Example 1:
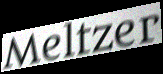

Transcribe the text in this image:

Meltzer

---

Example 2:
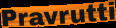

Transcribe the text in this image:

Pravrutti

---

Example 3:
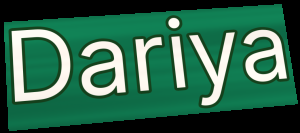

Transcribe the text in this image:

Dariya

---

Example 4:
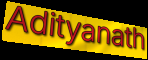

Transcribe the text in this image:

Adityanath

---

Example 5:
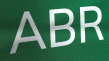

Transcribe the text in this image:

ABR